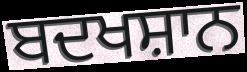
ਬਦਖਸ਼ਾਨ